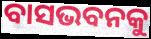
ବାସଭବନକୁ